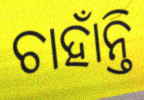
ଚାହାଁନ୍ତି